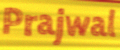
Prajwal